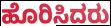
ಹೊರಿಸಿದರು